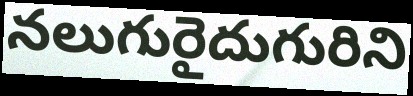
నలుగురైదుగురిని